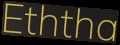
Eththa